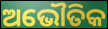
ଅଭୌତିକ